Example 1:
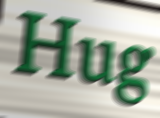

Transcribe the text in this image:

Hug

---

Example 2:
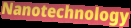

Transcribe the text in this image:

Nanotechnology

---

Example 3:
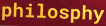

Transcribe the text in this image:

philosphy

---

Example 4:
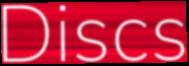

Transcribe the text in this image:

Discs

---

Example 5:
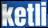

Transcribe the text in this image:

ketli